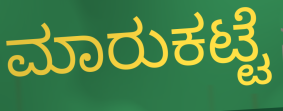
ಮಾರುಕಟ್ಟೆ